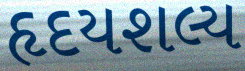
હૃદયશલ્ય